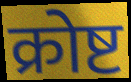
क्रोष्ट